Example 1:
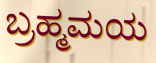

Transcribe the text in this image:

ಬ್ರಹ್ಮಮಯ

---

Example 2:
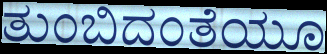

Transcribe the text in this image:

ತುಂಬಿದಂತೆಯೂ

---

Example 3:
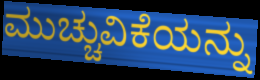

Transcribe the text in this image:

ಮುಚ್ಚುವಿಕೆಯನ್ನು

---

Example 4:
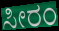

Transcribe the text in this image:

ಸೀರಂ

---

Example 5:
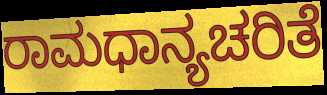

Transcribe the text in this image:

ರಾಮಧಾನ್ಯಚರಿತೆ